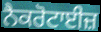
ਨੈਕਰੋਟਾਈਜ਼